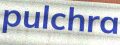
pulchra